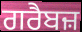
ਗਰੈਬਜ਼